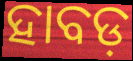
ହାବଡ଼